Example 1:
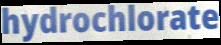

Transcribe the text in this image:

hydrochlorate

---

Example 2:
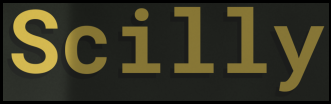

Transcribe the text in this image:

Scilly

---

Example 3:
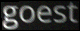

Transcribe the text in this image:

goest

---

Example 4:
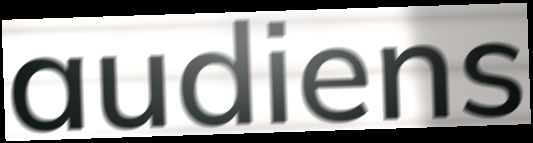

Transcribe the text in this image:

audiens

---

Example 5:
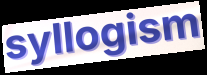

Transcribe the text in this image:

syllogism